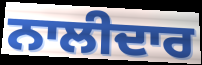
ਨਾਲੀਦਾਰ